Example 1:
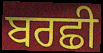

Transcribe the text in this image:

ਬਰਛੀ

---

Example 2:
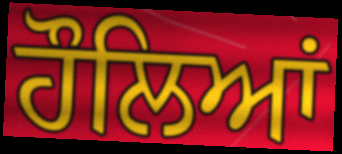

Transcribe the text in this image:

ਹੌਲਿਆਂ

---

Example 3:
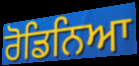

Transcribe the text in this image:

ਰੋਡਿਨਿਆ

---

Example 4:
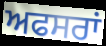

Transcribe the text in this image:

ਅਫਸਰਾਂ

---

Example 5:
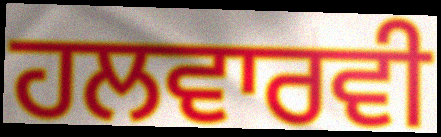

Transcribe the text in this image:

ਹਲਵਾਰਵੀ